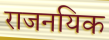
राजनयिक